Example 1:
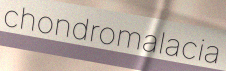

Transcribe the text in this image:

chondromalacia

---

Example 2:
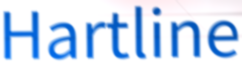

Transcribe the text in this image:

Hartline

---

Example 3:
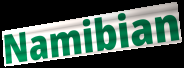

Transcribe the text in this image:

Namibian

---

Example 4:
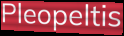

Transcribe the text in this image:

Pleopeltis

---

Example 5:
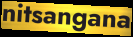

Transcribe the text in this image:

nitsangana